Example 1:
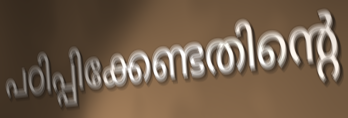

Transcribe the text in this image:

പഠിപ്പിക്കേണ്ടതിന്റെ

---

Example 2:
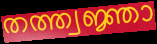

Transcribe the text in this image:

തത്ത്വജ്ഞാ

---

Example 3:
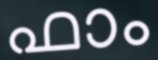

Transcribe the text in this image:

ഫാം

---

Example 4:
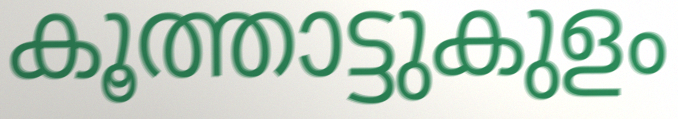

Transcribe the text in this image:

കൂത്താട്ടുകുളം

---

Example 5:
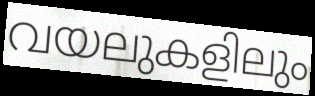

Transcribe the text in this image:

വയലുകളിലും